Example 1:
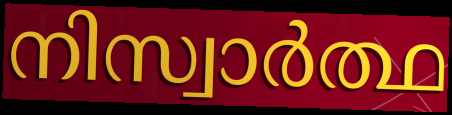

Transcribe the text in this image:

നിസ്വാർത്ഥ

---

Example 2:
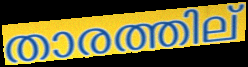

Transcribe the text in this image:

താരത്തില്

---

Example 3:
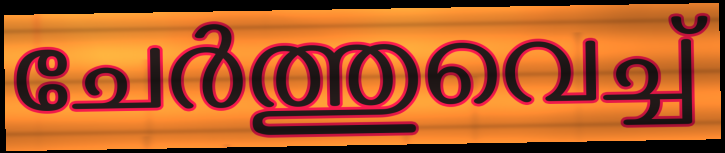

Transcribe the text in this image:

ചേർത്തുവെച്ച്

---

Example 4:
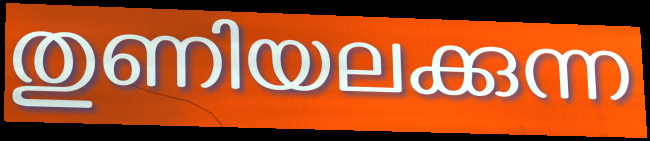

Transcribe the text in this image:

തുണിയലക്കുന്ന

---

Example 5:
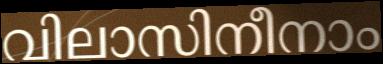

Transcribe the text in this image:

വിലാസിനീനാം